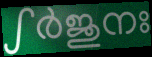
ഽർജുനഃ